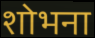
शोभना